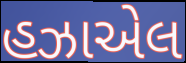
હઝાએલ